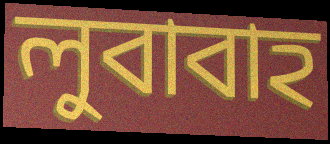
লুবাবাহ